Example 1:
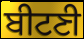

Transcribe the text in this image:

ਬੀਟਣੀ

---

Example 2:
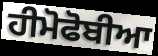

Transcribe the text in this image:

ਹੀਮੋਫੋਬੀਆ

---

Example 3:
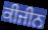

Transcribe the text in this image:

ਕੀਜੀਨ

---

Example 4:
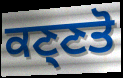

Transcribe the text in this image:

ਕਣ੍ਣਤੋ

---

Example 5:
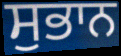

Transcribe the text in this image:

ਸੁਭਾਨ